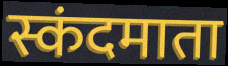
स्‍कंदमाता